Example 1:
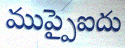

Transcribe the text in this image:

ముప్పైఐదు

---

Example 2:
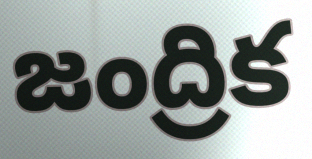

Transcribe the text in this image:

జంద్రిక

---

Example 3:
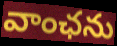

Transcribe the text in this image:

వాంఛను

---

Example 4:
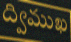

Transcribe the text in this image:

ద్విముఖ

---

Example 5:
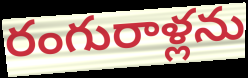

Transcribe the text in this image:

రంగురాళ్లను